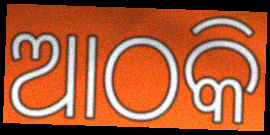
ଆଠକି